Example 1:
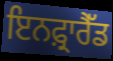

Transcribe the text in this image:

ਇਨਫ਼੍ਰਾਰੈੱਡ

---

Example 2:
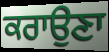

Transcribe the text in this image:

ਕਰਾਉਣਾ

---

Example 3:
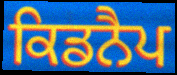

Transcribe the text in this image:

ਕਿਡਨੈਪ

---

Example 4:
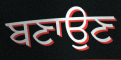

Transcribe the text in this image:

ਬਣਾਉਣ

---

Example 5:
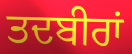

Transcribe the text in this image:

ਤਦਬੀਰਾਂ